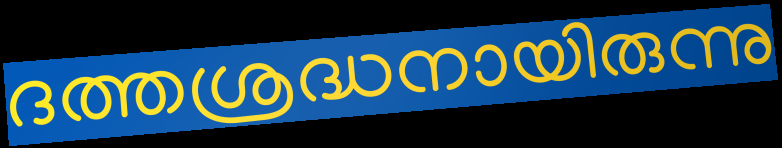
ദത്തശ്രദ്ധനായിരുന്നു